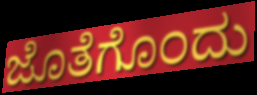
ಜೊತೆಗೊಂದು